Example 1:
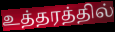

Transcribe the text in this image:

உத்தரத்தில்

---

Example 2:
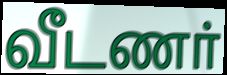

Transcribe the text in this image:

வீடணர்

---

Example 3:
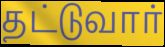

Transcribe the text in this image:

தட்டுவார்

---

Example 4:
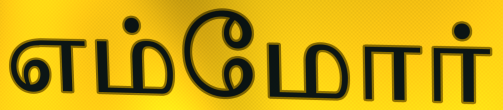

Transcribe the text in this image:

எம்மோர்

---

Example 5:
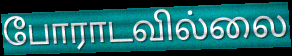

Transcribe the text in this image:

போராடவில்லை